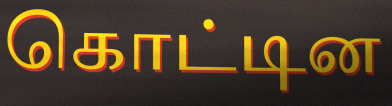
கொட்டின